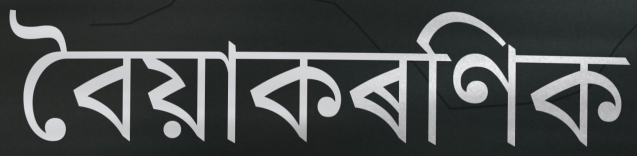
বৈয়াকৰণিক